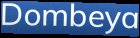
Dombeya